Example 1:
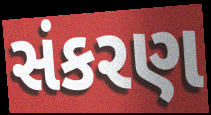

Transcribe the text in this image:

સંકરણ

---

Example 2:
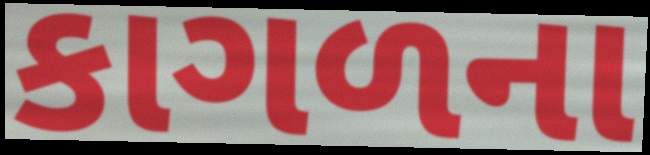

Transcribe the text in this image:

કાગળના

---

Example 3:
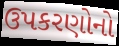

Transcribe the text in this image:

ઉપકરણોનો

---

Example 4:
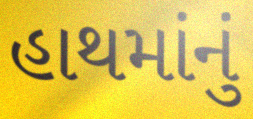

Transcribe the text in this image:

હાથમાંનું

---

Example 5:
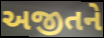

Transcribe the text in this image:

અજીતને